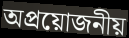
অপ্ৰয়োজনীয়